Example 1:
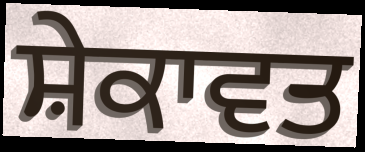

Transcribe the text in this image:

ਸ਼ੇਕਾਵਤ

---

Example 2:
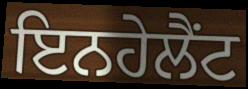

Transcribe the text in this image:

ਇਨਹੇਲੈਂਟ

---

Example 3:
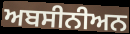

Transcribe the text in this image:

ਅਬਸੀਨੀਅਨ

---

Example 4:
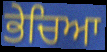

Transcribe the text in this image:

ਭੇਚਿਆ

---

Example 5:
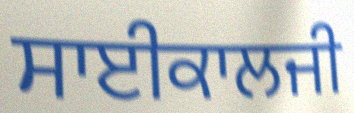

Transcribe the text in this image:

ਸਾਈਕਾਲਜੀ